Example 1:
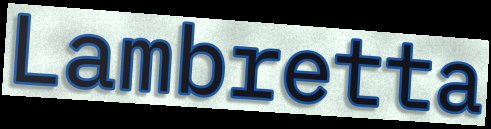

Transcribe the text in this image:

Lambretta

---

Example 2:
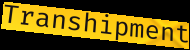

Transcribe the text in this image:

Transhipment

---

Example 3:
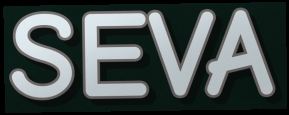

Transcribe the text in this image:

SEVA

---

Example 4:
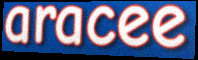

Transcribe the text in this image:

aracee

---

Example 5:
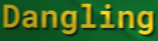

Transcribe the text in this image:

Dangling